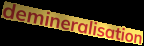
demineralisation